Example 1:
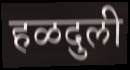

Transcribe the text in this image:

हळदुली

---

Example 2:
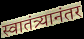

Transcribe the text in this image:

स्वातंत्र्यानंतर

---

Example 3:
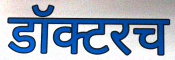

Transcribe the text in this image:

डॉक्टरच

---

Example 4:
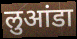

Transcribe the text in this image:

लुआंडा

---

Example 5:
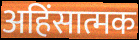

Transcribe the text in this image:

अहिंसात्मक